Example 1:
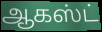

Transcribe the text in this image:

ஆகஸ்ட்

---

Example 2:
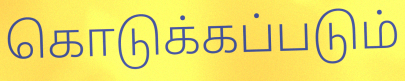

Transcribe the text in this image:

கொடுக்கப்படும்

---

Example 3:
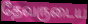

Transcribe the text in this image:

தேவருடைய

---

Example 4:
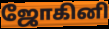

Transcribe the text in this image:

ஜோகினி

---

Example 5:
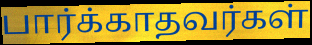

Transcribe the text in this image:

பார்க்காதவர்கள்